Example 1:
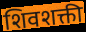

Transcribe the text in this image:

शिवशक्ती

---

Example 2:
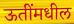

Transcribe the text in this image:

ऊतींमधील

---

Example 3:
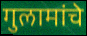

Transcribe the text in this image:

गुलामांचे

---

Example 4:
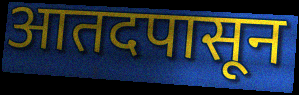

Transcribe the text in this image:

आतदपासून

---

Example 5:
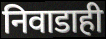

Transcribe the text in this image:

निवाडाही